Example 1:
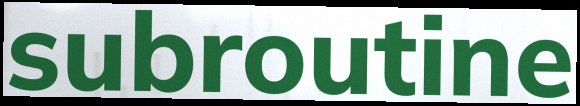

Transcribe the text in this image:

subroutine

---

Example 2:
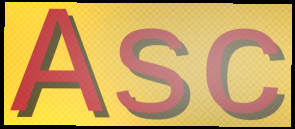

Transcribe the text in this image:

Asc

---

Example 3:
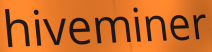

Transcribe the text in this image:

hiveminer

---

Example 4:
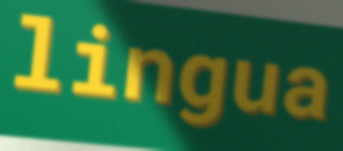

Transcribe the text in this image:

lingua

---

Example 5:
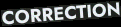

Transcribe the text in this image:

CORRECTION